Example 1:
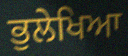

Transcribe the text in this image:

ਭੁਲੇਖਿਆ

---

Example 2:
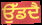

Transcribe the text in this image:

ਉੱਡਦੈ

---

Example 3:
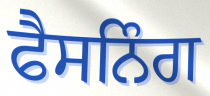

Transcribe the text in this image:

ਫੈਸਨਿੰਗ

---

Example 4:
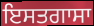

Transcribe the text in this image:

ਇਸਤਗਾਸਾ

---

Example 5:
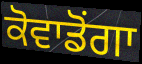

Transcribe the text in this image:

ਕੋਵਾਡੋਂਗਾ